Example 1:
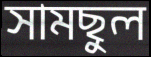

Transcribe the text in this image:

সামছুল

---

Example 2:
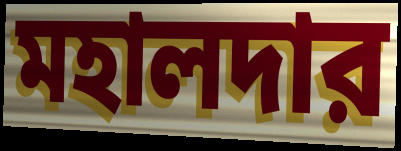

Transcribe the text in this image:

মহালদার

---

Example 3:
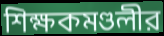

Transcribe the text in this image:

শিক্ষকমণ্ডলীর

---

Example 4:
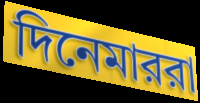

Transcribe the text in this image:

দিনেমাররা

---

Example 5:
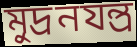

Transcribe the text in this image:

মুদ্রনযন্ত্র